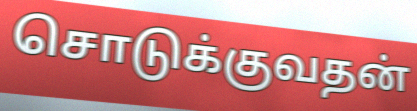
சொடுக்குவதன்